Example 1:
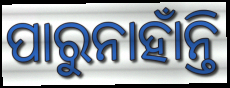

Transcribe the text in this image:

ପାରୁନାହାଁନ୍ତି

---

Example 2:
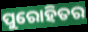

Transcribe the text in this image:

ପୁରୋହିତର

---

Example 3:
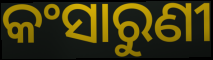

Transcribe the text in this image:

କଂସାରୁଣୀ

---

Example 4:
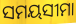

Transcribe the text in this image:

ସମୟସୀମା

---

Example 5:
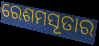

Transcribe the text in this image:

ରେଶମସୂତାର